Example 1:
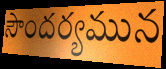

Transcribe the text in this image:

సౌందర్యమున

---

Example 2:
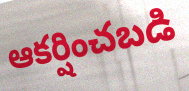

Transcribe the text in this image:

ఆకర్షించబడి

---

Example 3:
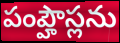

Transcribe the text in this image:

పంప్హౌస్లను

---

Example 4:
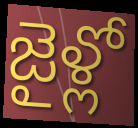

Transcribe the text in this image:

జైళ్లో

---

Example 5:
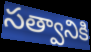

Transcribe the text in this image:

సత్వానికి